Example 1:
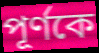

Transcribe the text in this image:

পূর্ণকে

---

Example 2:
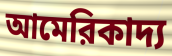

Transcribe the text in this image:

আমেরিকাদ্য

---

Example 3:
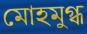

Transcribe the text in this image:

মোহমুগ্ধ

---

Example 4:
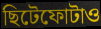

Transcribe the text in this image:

ছিটেফোটাও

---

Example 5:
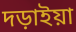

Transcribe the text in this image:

দড়াইয়া